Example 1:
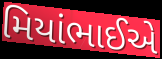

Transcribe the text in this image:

મિયાંભાઈએ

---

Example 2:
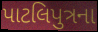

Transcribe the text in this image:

પાટલિપુત્રના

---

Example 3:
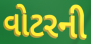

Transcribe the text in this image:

વોટરની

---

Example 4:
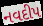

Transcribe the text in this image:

નવદીપ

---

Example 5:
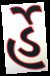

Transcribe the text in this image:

ર્હે